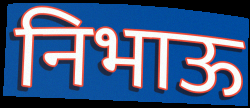
निभाऊ